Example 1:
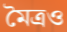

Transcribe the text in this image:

মৈত্রও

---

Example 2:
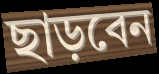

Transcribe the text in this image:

ছাড়বেন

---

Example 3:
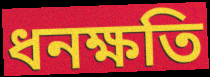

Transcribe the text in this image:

ধনক্ষতি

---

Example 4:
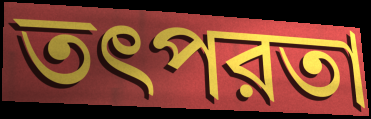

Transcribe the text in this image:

তৎপরতা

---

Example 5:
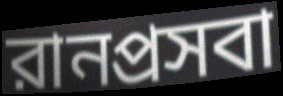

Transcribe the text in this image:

রানপ্রসবা